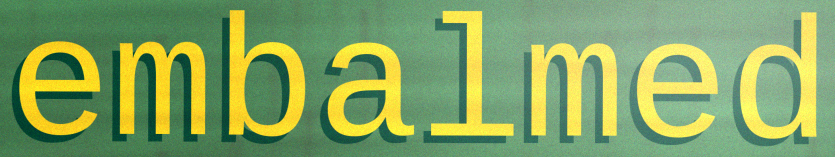
embalmed